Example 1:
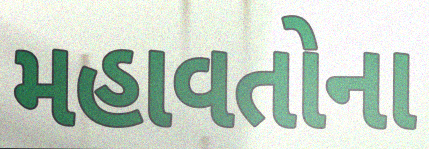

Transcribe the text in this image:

મહાવતોના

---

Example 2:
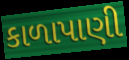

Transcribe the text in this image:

કાળાપાણી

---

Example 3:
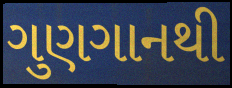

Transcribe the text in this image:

ગુણગાનથી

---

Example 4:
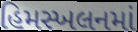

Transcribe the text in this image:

હિમસ્ખલનમાં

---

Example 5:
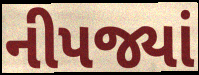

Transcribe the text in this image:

નીપજ્યાં